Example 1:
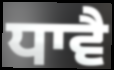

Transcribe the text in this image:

ਧਾਵੈ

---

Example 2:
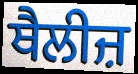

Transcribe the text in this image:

ਥੈਲੀਜ਼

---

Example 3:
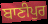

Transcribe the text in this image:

ਬਾਣੀਪੁਰ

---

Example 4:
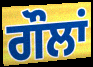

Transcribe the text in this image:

ਗੌਲਾਂ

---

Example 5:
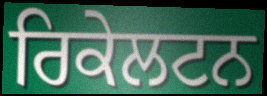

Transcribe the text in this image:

ਰਿਕੇਲਟਨ